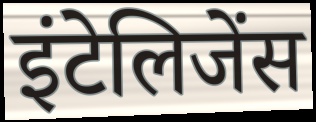
इंटेलिजेंस